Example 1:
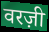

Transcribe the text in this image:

वरज़ी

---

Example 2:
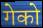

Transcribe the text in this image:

गेको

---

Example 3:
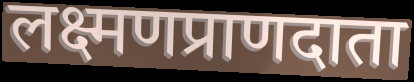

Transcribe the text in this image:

लक्ष्मणप्राणदाता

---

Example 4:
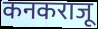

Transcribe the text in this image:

कनकराजू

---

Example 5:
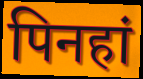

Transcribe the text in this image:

पिनहां